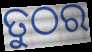
ତୁଠର